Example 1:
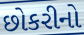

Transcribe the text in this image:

છોકરીનો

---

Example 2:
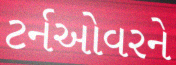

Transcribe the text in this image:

ટર્નઓવરને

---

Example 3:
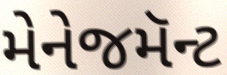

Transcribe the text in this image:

મેનેજમૅન્ટ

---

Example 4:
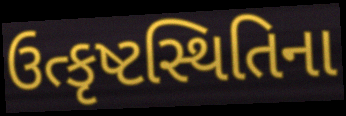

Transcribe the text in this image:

ઉત્કૃષ્ટસ્થિતિના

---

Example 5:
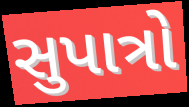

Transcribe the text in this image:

સુપાત્રો